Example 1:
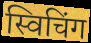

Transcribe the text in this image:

स्विचिंग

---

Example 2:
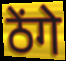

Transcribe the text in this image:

ठेंगे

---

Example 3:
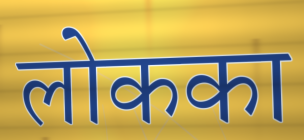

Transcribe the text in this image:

लोकका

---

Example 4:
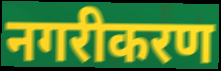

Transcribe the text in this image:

नगरीकरण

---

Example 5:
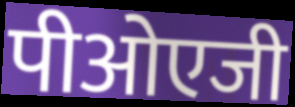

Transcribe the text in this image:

पीओएजी